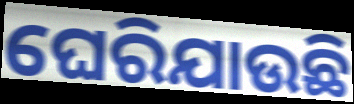
ଘେରିଯାଉଛି